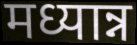
मध्यान्न